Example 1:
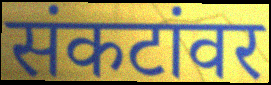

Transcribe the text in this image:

संकटांवर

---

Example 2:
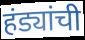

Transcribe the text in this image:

हंड्यांची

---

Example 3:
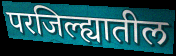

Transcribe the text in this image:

परजिल्ह्यातील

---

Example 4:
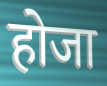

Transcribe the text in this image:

होजा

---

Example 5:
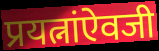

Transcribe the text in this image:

प्रयत्नांऐवजी